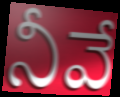
నీవే